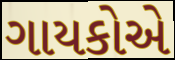
ગાયકોએ